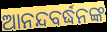
ଆନନ୍ଦବର୍ଦ୍ଧନଙ୍କ